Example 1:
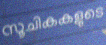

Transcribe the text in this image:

സൂചികകളുടെ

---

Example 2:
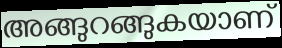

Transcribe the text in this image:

അങ്ങുറങ്ങുകയാണ്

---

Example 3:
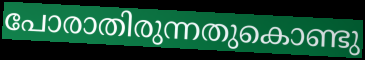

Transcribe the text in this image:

പോരാതിരുന്നതുകൊണ്ടു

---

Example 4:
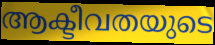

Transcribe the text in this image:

ആക്ടീവതയുടെ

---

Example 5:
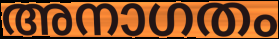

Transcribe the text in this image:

അനാഗതം